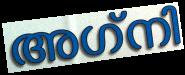
അഗ്‌നി